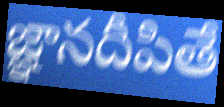
జ్ఞానదీపితే